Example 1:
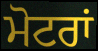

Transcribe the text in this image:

ਮੋਟਰਾਂ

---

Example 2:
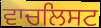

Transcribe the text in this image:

ਵਾਚਲਿਸਟ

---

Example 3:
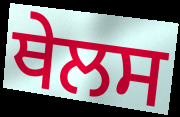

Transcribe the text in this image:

ਥੇਲਸ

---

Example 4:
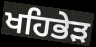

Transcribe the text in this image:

ਖਹਿਭੇੜ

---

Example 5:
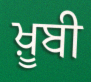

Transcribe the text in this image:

ਖ਼ੂਬੀ